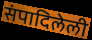
संपादिलेली